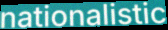
nationalistic